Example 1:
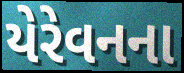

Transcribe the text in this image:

યેરેવનના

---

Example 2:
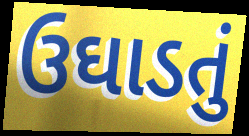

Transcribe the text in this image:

ઉઘાડતું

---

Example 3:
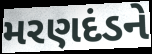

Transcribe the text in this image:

મરણદંડને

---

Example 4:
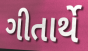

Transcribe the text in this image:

ગીતાર્થે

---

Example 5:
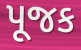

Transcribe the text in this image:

પૂજક